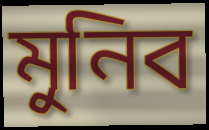
মুনিব